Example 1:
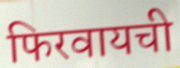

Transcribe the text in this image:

फिरवायची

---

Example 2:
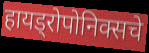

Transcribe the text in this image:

हायड्रोपोनिक्सचे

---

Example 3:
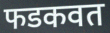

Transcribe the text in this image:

फडकवत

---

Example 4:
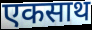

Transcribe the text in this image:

एकसाथ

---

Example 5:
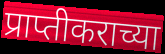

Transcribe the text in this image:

प्राप्तीकराच्या